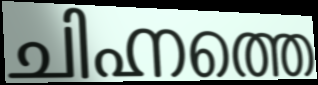
ചിഹ്നത്തെ